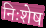
निःशेष